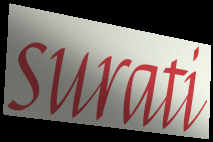
surati